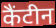
कैंटीन